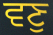
ਵਣੁ